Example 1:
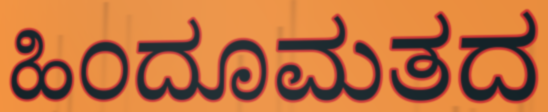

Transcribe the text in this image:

ಹಿಂದೂಮತದ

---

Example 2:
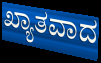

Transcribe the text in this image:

ಖ್ಯಾತವಾದ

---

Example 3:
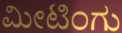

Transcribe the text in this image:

ಮೀಟಿಂಗು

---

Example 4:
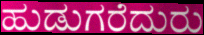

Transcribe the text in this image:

ಹುಡುಗರೆದುರು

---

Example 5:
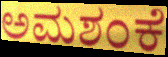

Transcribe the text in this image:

ಅಮಶಂಕೆ